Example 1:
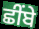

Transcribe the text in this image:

ਛੀਂਬੇ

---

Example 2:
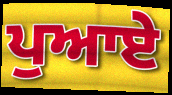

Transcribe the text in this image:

ਪੁਆਏ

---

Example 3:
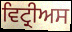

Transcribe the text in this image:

ਵਿਟ੍ਰੀਅਸ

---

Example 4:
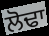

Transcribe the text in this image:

ਲੋਢਾ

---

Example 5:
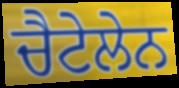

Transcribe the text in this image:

ਚੈਟੇਲੇਨ